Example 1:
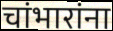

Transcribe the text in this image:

चांभारांना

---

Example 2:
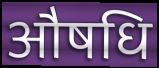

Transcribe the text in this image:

औषधि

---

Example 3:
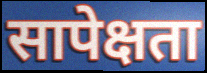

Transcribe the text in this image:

सापेक्षता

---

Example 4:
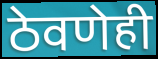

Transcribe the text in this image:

ठेवणेही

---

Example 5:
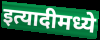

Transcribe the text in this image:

इत्यादीमध्ये